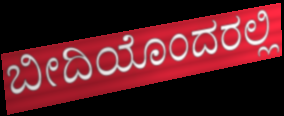
ಬೀದಿಯೊಂದರಲ್ಲಿ